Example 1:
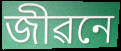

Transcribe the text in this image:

জীৱনে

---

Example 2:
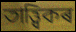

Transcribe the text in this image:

তাত্ত্বিকৰ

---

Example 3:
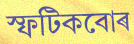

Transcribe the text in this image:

স্ফটিকবোৰ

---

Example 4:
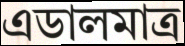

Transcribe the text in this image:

এডালমাত্ৰ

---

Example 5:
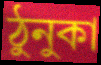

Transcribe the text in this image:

ঠুনুকা